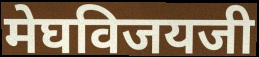
मेघविजयजी